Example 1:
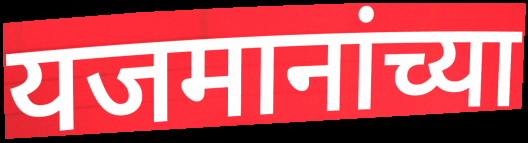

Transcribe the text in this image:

यजमानांच्या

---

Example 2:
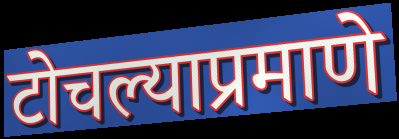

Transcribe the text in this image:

टोचल्याप्रमाणे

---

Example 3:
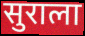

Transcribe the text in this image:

सुराला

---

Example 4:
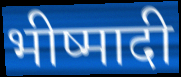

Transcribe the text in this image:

भीष्मादी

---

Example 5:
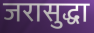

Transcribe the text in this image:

जरासुद्धा